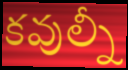
కవుల్నీ